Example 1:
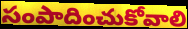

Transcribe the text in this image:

సంపాదించుకోవాలి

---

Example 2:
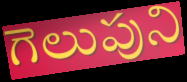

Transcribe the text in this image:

గెలుపుని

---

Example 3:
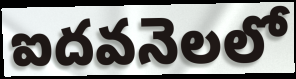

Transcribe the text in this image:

ఐదవనెలలో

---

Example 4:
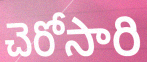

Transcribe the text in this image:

చెరోసారి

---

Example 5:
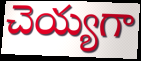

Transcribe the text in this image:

చెయ్యగా